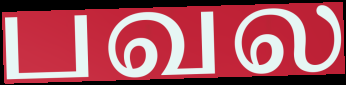
பவல